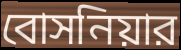
বোসনিয়ার